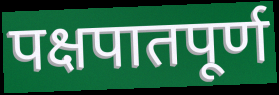
पक्षपातपूर्ण